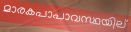
മാരകപാപാവസ്ഥയില്